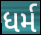
ધર્મ